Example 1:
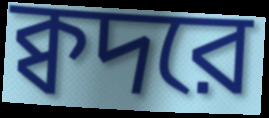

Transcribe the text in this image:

ক্বদরে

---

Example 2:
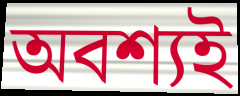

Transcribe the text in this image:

অবশ্যই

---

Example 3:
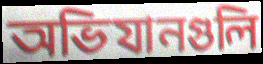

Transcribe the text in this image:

অভিযানগুলি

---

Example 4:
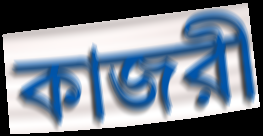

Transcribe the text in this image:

কাজরী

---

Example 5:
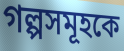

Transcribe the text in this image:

গল্পসমূহকে